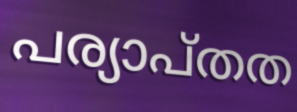
പര്യാപ്തത